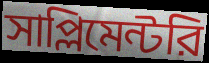
সাপ্লিমেন্টরি